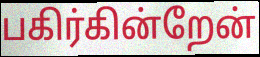
பகிர்கின்றேன்